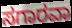
ಸಗಾರವಾ